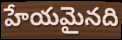
హేయమైనది